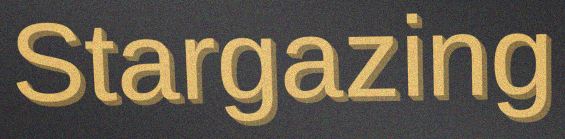
Stargazing